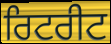
ਰਿਟਰੀਟ